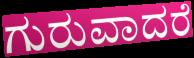
ಗುರುವಾದರೆ